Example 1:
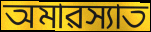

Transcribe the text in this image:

অমাৱস্যাত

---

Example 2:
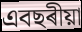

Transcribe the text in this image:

এবছৰীয়া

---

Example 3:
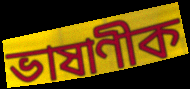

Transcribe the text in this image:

ভাষাণীক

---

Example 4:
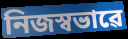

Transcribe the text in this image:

নিজস্বভাৱে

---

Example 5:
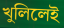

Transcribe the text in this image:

খুলিলেই